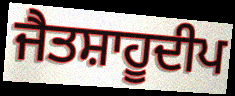
ਜੈਤਸ਼ਾਹੂਦੀਪ